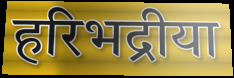
हरिभद्रीया